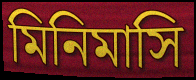
মিনিমাসি